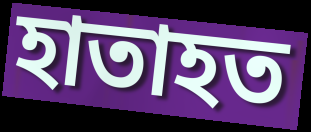
হাতাহত